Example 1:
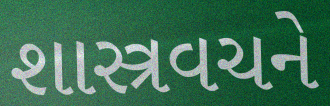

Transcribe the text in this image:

શાસ્ત્રવચને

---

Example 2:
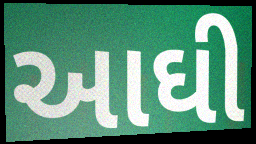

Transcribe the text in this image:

આઘી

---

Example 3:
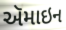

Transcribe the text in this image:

ઍમાઇન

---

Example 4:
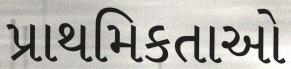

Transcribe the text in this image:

પ્રાથમિકતાઓ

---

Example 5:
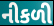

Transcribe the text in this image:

નીકળી